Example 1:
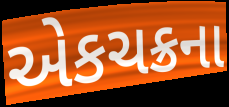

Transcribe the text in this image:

એકચક્રના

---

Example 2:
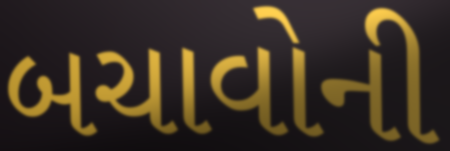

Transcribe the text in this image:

બચાવોની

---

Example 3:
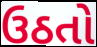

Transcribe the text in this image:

ઉઠતો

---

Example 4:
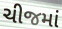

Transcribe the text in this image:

ચીજમાં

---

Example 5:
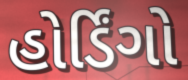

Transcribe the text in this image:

હોર્ડિંગો